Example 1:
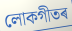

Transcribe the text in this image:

লোকগীতৰ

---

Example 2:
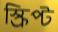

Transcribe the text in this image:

স্ক্ৰিপ্ট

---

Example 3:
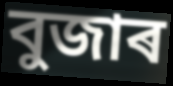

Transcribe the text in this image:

বুজাৰ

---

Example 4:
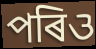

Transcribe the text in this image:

পৰিও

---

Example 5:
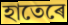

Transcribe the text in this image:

হাতেৰে